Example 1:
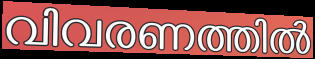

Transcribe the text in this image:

വിവരണത്തിൽ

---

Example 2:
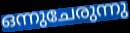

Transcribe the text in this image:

ഒന്നുചേരുന്നു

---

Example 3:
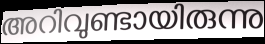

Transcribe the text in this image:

അറിവുണ്ടായിരുന്നു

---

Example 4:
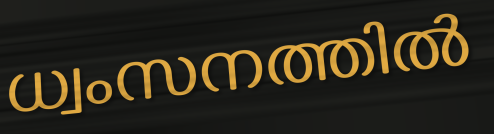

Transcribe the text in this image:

ധ്വംസനത്തിൽ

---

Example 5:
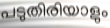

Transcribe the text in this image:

പടുതിരിയാളും